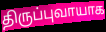
திருப்புவாயாக